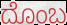
ದೊಂಬ